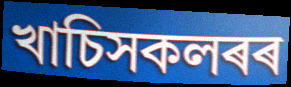
খাচিসকলৰৰ